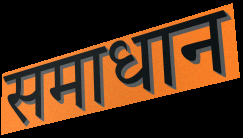
समाधान